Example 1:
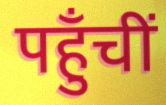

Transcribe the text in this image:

पहुँचीं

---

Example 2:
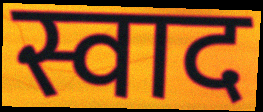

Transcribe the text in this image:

स्‍वाद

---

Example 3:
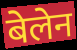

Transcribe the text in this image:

बेलेन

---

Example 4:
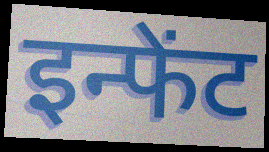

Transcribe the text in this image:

इन्फेंट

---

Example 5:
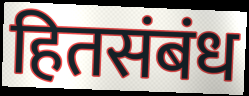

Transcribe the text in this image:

हितसंबंध